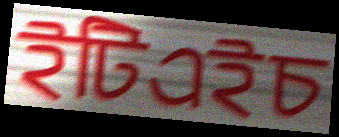
ইটিএইচ